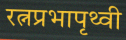
रत्नप्रभापृथ्वी